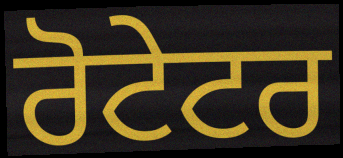
ਰੋਟੇਟਰ